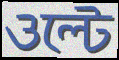
ওল্টে